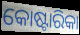
କୋଷ୍ଟାରିକା